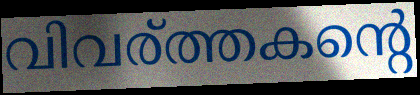
വിവര്ത്തകന്റെ